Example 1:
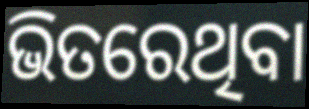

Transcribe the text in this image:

ଭିତରେଥିବା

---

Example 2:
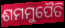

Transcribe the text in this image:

ଶମମୁପୈତି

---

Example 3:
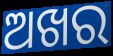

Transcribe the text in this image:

ଅଖର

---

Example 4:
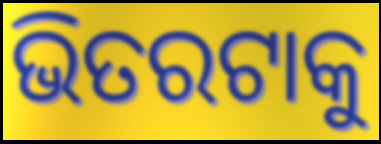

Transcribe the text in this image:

ଭିତରଟାକୁ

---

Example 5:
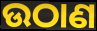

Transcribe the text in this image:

ଉଠାଣ